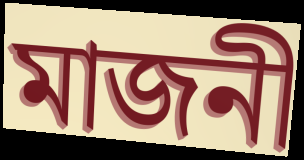
মাজনী